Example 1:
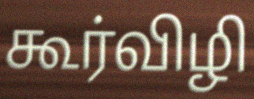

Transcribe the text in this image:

கூர்விழி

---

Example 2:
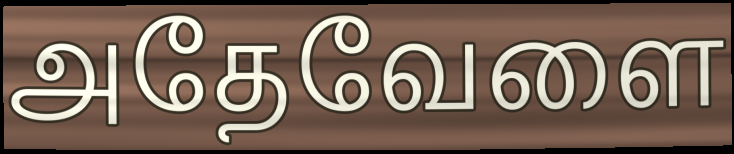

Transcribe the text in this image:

அதேவேளை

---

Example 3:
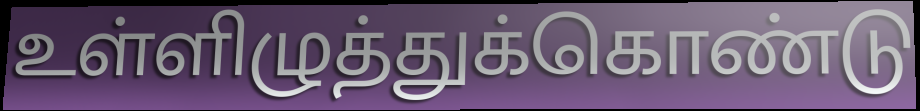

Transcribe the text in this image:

உள்ளிழுத்துக்கொண்டு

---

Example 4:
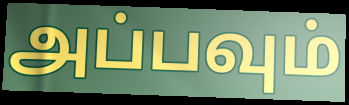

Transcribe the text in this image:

அப்பவும்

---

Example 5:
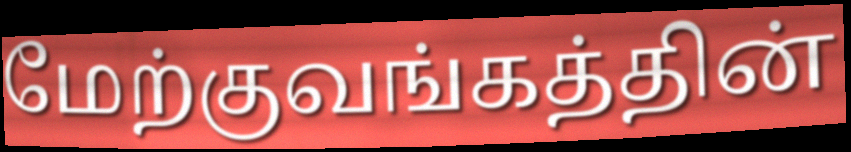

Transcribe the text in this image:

மேற்குவங்கத்தின்